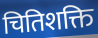
चितिशक्ति